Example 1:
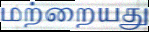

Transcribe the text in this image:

மற்றையது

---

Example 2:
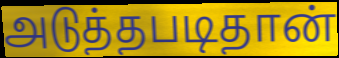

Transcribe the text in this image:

அடுத்தபடிதான்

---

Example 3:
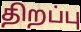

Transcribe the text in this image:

திறப்பு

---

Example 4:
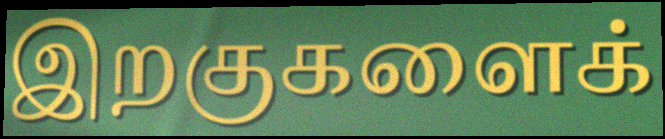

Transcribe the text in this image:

இறகுகளைக்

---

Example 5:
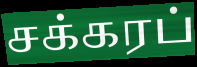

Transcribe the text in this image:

சக்கரப்